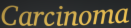
Carcinoma